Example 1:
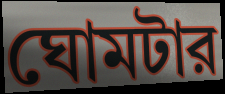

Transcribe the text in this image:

ঘোমটার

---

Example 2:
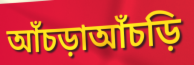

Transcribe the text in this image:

আঁচড়াআঁচড়ি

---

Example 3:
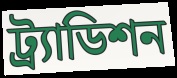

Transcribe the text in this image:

ট্র্যাডিশন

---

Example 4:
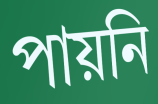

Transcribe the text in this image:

পায়নি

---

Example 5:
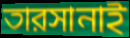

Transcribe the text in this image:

তারসানাই